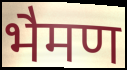
भैमण